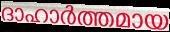
ദാഹാർത്തമായ